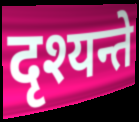
दृश्यन्ते